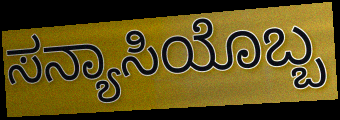
ಸನ್ಯಾಸಿಯೊಬ್ಬ